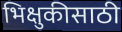
भिक्षुकीसाठी